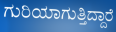
ಗುರಿಯಾಗುತ್ತಿದ್ದಾರೆ